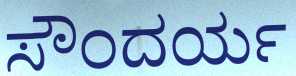
ಸೌಂದರ್ಯ